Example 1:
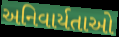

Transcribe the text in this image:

અનિવાર્યતાઓ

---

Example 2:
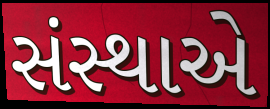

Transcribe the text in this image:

સંસ્થાએ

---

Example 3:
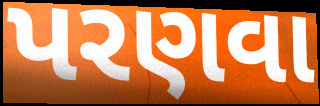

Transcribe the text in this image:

પરણવા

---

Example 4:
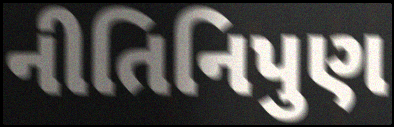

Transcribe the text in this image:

નીતિનિપુણ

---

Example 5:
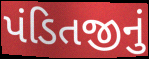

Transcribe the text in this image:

પંડિતજીનું